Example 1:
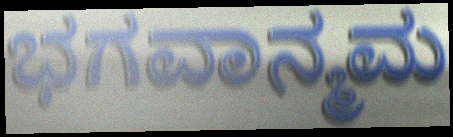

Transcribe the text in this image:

ಭಗವಾನ್ಮಮ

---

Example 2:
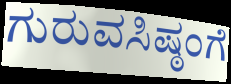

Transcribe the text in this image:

ಗುರುವಸಿಷ್ಠಂಗೆ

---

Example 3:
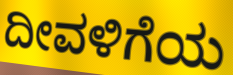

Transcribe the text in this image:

ದೀವಳಿಗೆಯ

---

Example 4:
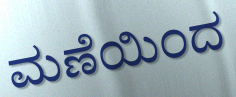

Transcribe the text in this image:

ಮಣೆಯಿಂದ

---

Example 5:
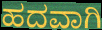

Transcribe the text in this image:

ಹದವಾಗಿ